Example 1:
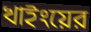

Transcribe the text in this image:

খাইংয়ের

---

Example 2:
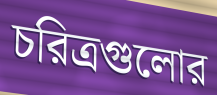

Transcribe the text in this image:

চরিত্রগুলোর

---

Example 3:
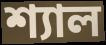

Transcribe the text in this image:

শ্যাল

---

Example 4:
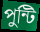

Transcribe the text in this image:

পুন্টি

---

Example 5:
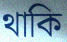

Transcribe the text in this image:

থাকি